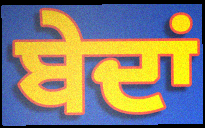
ਬੇਦਾਂ